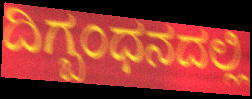
ದಿಗ್ಬಂಧನದಲ್ಲಿ